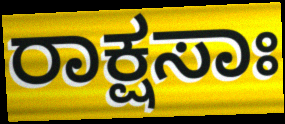
ರಾಕ್ಷಸಾಃ